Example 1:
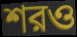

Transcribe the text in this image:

শরও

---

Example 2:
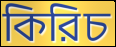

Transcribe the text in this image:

কিরিচ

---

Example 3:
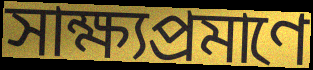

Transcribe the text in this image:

সাক্ষ্যপ্রমাণে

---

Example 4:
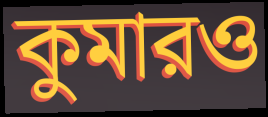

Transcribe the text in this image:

কুমারও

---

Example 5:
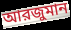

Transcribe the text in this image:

আরজুমান